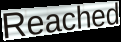
Reached